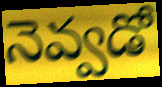
నెవ్వడో